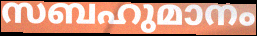
സബഹുമാനം